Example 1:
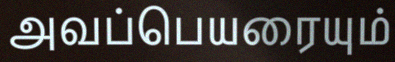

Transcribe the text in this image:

அவப்பெயரையும்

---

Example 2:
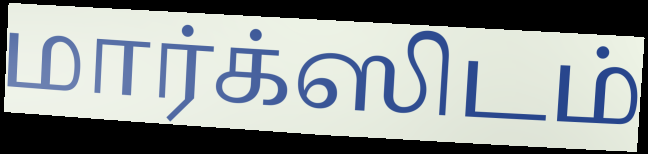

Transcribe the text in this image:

மார்க்ஸிடம்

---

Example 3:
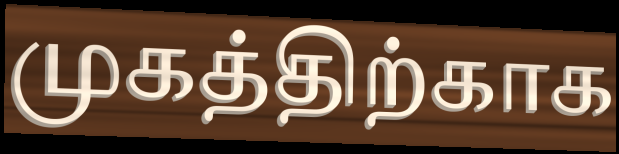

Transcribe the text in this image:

முகத்திற்காக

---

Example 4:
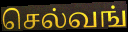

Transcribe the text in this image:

செல்வங்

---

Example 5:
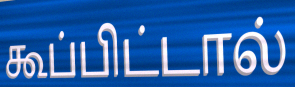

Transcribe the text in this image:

கூப்பிட்டால்